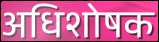
अधिशोषक